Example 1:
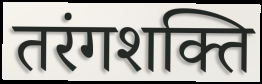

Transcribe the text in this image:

तरंगशक्ति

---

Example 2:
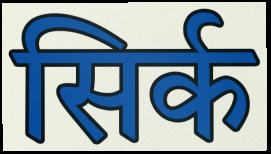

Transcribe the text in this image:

सिर्क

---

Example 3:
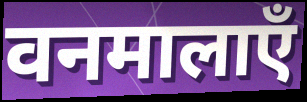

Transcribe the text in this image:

वनमालाएँ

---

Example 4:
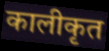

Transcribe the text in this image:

कालीकृत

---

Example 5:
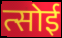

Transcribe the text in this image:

त्सोई